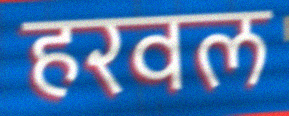
हरवल